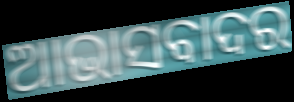
ଆଭାସବାଦର